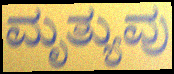
ಮೃತ್ಯುವು